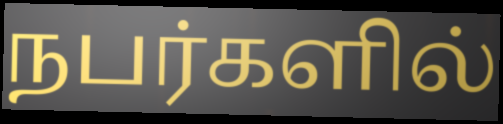
நபர்களில்